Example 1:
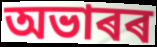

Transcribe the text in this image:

অভাৰৰ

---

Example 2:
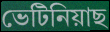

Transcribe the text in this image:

ভেটিনিয়াছ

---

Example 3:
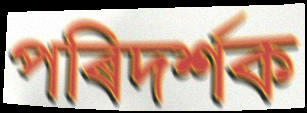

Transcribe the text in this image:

পৰিদৰ্শক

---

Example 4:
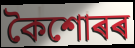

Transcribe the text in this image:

কৈশোৰৰ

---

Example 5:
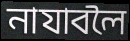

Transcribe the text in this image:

নাযাবলৈ